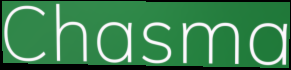
Chasma